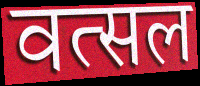
वत्सल